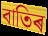
বাতিৰ